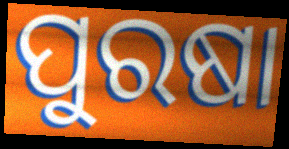
ପୁରଷା